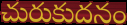
చురుకుదనం